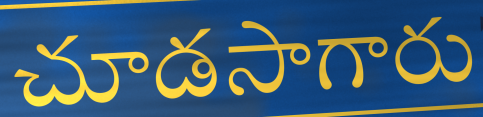
చూడసాగారు